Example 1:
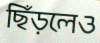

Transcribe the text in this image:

ছিঁড়লেও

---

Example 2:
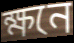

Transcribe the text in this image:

ক্ষনে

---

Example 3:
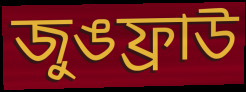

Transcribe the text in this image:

জুঙফ্রাউ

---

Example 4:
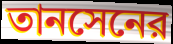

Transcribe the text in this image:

তানসেনের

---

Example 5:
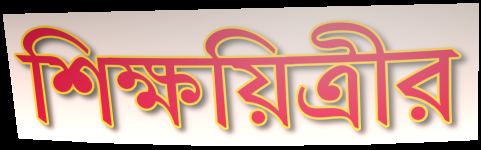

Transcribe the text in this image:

শিক্ষয়িত্রীর